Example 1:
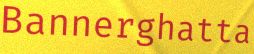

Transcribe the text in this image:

Bannerghatta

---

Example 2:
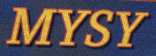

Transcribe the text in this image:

MYSY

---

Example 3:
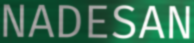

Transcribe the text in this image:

NADESAN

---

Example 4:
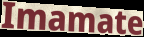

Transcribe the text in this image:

Imamate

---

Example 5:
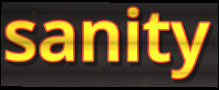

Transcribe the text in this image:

sanity